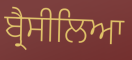
ਬ੍ਰੈਸੀਲਿਆ